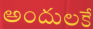
అందులకే